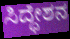
ಸಿದ್ಧೇಶನ